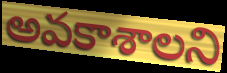
అవకాశాలని